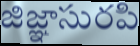
జిజ్ఞాసురపి